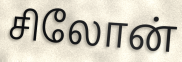
சிலோன்